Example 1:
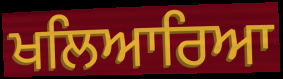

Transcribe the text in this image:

ਖਲਿਆਰਿਆ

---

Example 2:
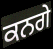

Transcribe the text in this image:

ਕਨਗੇ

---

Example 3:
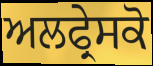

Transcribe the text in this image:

ਅਲਫ੍ਰੇਸਕੋ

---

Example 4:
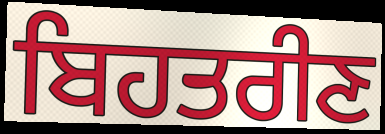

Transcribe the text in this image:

ਬਿਹਤਰੀਣ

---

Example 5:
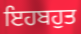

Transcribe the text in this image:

ਇਹਬਹੁਤ